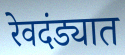
रेवदंड्यात